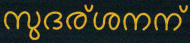
സുദര്ശനന്